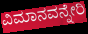
ವಿಮಾನವನ್ನೇರಿ